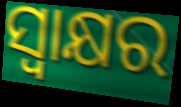
ସ୍ଵାକ୍ଷର